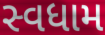
સ્વધામ